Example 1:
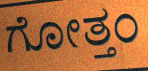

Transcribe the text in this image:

ಗೋತ್ತಂ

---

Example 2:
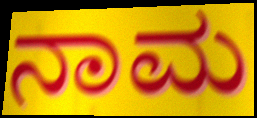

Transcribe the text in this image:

ನಾಮ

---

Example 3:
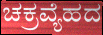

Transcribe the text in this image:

ಚಕ್ರವ್ಯೆಹದ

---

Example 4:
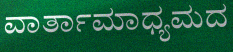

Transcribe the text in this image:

ವಾರ್ತಾಮಾಧ್ಯಮದ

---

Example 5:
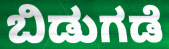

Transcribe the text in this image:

ಬಿಡುಗಡೆ